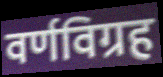
वर्णविग्रह